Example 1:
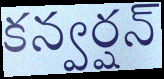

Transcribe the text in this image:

కన్వర్షన్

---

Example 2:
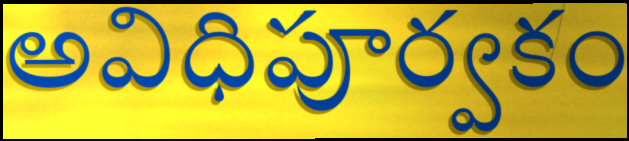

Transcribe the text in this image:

అవిధిపూర్వకం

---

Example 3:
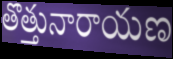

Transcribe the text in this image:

తొత్తునారాయణ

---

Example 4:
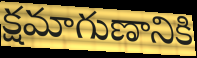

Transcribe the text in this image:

క్షమాగుణానికి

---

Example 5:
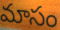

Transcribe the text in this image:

మాసం